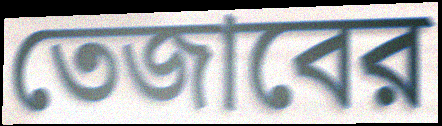
তেজাবের